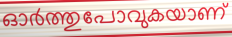
ഓർത്തുപോവുകയാണ്